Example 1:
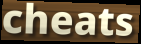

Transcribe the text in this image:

cheats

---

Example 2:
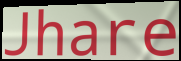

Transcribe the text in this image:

Jhare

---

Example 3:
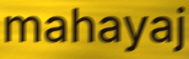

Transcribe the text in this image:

mahayaj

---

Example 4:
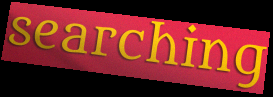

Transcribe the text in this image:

searching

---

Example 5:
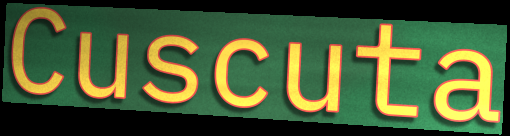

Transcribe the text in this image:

Cuscuta